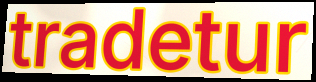
tradetur